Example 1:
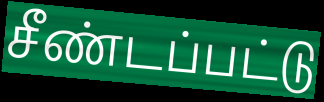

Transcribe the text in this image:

சீண்டப்பட்டு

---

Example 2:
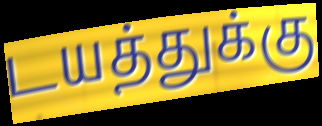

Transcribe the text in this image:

டயத்துக்கு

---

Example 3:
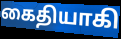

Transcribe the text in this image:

கைதியாகி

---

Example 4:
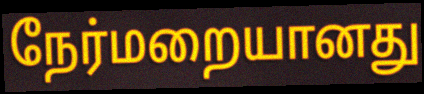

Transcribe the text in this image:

நேர்மறையானது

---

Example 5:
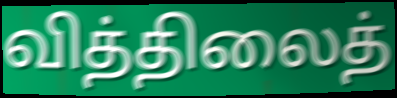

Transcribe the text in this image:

வித்திலைத்